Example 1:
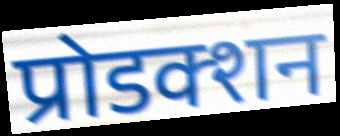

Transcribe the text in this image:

प्रोडक्‍शन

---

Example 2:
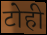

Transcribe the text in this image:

टोही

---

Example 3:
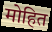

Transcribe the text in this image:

मोहित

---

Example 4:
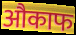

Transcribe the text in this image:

औकाफ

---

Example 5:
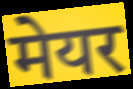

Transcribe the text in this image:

मेयर